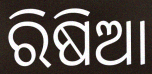
ରିଷିଆ